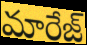
మారేజ్